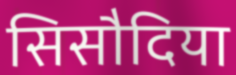
सिसौदिया